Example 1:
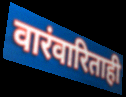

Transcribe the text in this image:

वारंवारिताही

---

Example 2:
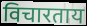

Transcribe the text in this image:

विचारताय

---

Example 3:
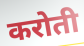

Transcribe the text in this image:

करोती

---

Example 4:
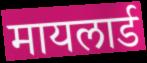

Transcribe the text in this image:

मायलार्ड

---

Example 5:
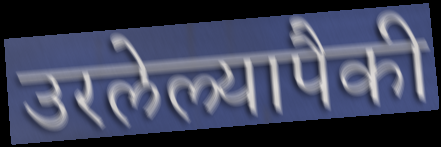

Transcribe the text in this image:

उरलेल्यापैकी